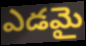
ఎడమై